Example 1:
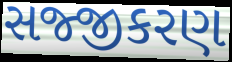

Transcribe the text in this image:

સજ્જીકરણ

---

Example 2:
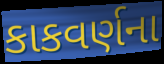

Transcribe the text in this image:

કાકવર્ણના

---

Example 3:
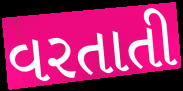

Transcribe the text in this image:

વરતાતી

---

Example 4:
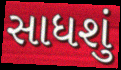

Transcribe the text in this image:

સાધશું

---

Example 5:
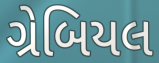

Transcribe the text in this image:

ગ્રેબિયલ